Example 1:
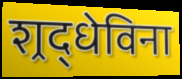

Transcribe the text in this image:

श्रद्धेविना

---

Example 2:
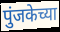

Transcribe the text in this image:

पुंजकेच्या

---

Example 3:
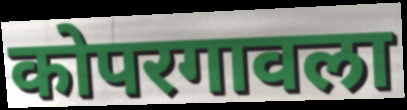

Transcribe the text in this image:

कोपरगावला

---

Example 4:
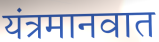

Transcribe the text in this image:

यंत्रमानवात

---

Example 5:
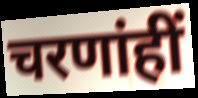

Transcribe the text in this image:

चरणांहीं